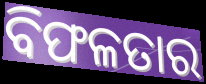
ବିଫଳତାର